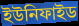
ইউনিফাইড